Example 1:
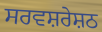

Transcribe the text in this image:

ਸਰਵਸ਼ਰੇਸ਼ਠ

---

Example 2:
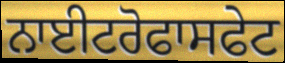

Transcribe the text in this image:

ਨਾਈਟਰੋਫਾਸਫੇਟ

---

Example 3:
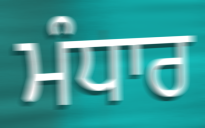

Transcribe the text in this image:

ਮੰਧਾਰ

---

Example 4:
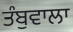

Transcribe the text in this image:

ਤੰਬੁਵਾਲਾ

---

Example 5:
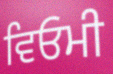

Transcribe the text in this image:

ਵਿਓਮੀ